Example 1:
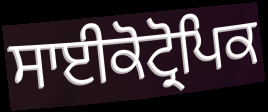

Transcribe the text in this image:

ਸਾਈਕੋਟ੍ਰੋਪਿਕ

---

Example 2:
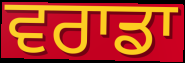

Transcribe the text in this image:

ਵਰਾਡਾ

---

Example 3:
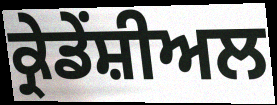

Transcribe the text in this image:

ਕ੍ਰੇਡੇਂਸ਼ੀਅਲ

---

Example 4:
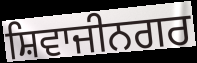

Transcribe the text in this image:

ਸ਼ਿਵਾਜੀਨਗਰ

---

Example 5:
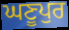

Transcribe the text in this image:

ਘਣੂਪੁਰ